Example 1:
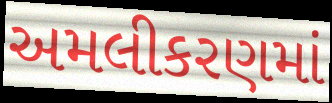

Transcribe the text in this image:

અમલીકરણમાં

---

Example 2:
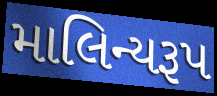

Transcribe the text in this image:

માલિન્યરૂપ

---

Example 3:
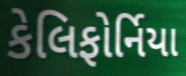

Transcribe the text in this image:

કેલિફોર્નિયા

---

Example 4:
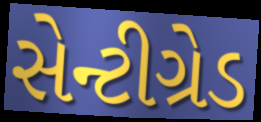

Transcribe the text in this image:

સેન્ટીગ્રેડ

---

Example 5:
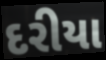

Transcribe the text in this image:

દરીયા